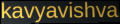
kavyavishva